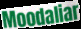
Moodaliar